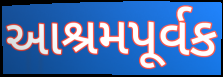
આશ્રમપૂર્વક